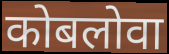
कोबलोवा